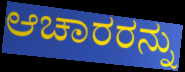
ಆಚಾರರನ್ನು